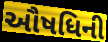
ઔષધિની